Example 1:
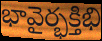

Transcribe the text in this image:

భావైర్భక్తిభి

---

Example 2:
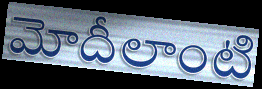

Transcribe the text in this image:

మోదీలాంటి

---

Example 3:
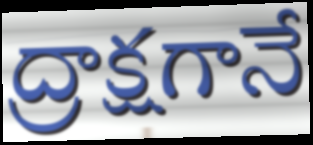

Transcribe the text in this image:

ద్రాక్షగానే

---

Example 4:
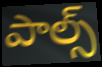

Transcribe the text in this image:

పాల్స్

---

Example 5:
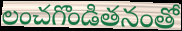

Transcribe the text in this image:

లంచగొండితనంతో